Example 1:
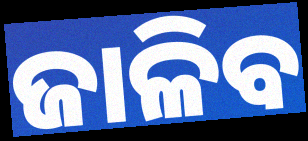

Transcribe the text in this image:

ଜାଳିବ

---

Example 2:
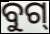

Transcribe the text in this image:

ବୁଗ୍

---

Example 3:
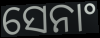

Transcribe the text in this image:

ସେନାଂ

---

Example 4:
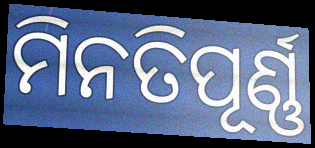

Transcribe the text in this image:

ମିନତିପୂର୍ଣ୍ଣ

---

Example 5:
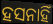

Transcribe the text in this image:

ହସନାହିଁ